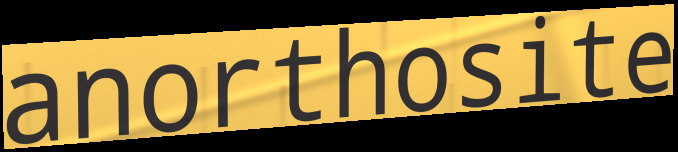
anorthosite